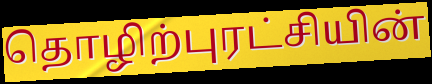
தொழிற்புரட்சியின்